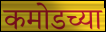
कमोडच्या